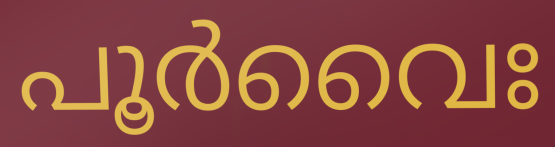
പൂർവൈഃ